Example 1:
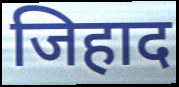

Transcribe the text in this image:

जिहाद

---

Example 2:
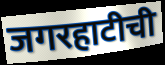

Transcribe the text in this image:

जगरहाटीची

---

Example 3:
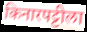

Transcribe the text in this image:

किनारपट्टीला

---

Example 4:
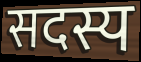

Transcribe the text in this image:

सदस्‍य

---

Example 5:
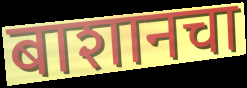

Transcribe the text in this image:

बाशानचा